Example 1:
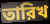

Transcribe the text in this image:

তারিখ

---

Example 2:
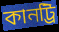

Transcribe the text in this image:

কানট্রি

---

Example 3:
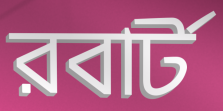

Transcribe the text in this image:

রবার্ট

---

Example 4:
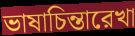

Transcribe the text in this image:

ভাষাচিন্তারেখা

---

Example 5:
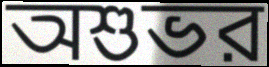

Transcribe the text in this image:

অশুভর